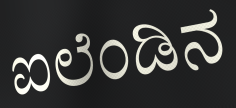
ಐಲೆಂಡಿನ